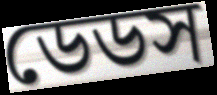
ডেডস